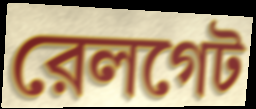
রেলগেট